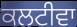
ਕਲਟੀਵਾ